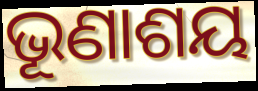
ଭୂଣାଶୟ